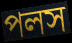
পলস